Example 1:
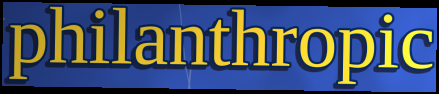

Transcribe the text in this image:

philanthropic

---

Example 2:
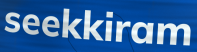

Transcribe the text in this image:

seekkiram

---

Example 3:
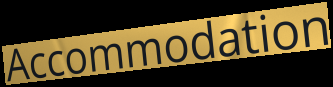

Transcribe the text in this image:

Accommodation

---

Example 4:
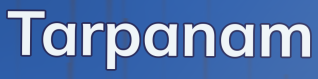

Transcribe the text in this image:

Tarpanam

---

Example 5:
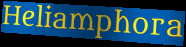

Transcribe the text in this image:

Heliamphora